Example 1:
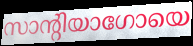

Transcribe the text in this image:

സാന്റിയാഗോയെ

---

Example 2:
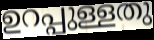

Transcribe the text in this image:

ഉറപ്പുള്ളതു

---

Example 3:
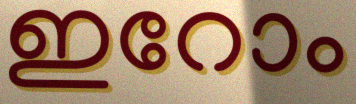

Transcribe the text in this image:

ഇറോം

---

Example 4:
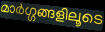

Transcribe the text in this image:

മാർഗ്ഗങ്ങളിലൂടെ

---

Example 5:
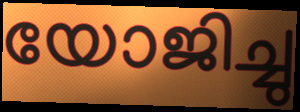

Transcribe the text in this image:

യോജിച്ചു